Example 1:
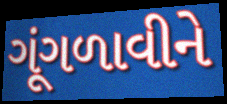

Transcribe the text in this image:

ગૂંગળાવીને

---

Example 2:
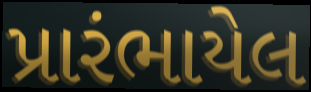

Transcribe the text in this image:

પ્રારંભાયેલ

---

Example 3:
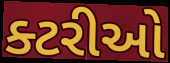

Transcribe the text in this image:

ક્ટરીઓ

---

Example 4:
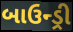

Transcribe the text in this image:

બાઉન્ડ્રી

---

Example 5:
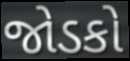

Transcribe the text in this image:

જોડકો